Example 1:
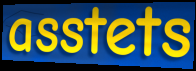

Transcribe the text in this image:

asstets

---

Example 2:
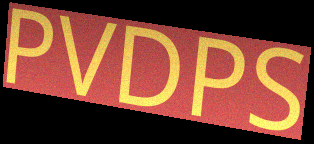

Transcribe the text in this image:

PVDPS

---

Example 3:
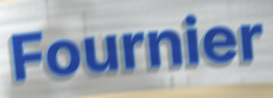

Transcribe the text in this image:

Fournier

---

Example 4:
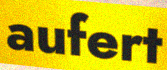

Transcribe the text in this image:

aufert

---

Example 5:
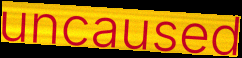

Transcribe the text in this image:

uncaused